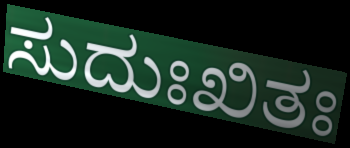
ಸುದುಃಖಿತಃ